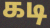
கடி